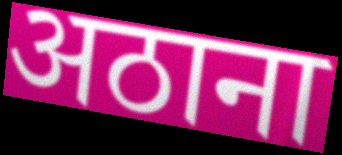
अठाना